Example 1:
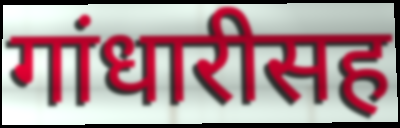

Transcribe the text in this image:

गांधारीसह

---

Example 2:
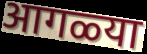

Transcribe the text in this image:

आगळ्या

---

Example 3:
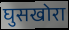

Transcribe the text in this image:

घुसखोरा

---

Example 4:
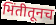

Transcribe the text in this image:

भिंतीतूनच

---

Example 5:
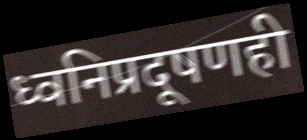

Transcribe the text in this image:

ध्वनिप्रदूषणही